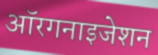
ऑरगनाइजेशन